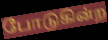
போடுகின்ற